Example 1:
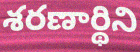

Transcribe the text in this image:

శరణార్థిని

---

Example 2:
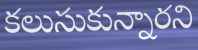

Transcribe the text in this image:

కలుసుకున్నారని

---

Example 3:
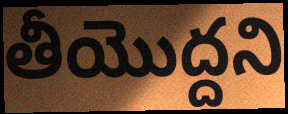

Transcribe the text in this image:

తీయొద్దని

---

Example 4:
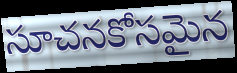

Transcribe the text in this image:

సూచనకోసమైన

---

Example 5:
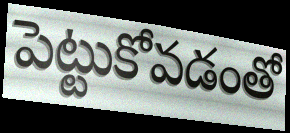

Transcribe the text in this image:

పెట్టుకోవడంతో